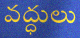
వద్ధులు